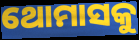
ଥୋମାସକୁ